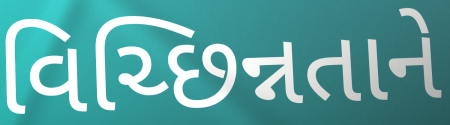
વિચ્છિન્નતાને